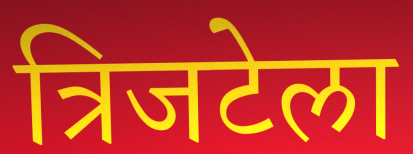
त्रिजटेला